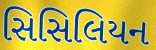
સિસિલિયન